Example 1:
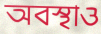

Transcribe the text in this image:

অবস্থাও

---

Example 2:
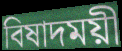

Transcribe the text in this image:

বিষাদময়ী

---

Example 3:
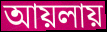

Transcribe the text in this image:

আয়লায়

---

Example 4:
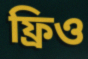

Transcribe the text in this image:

ফ্রিও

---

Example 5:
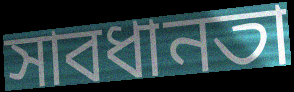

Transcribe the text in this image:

সাবধানতা